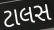
ટાલસ